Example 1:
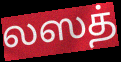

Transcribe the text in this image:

லஸத்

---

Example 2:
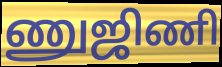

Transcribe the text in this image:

ணுஜிணி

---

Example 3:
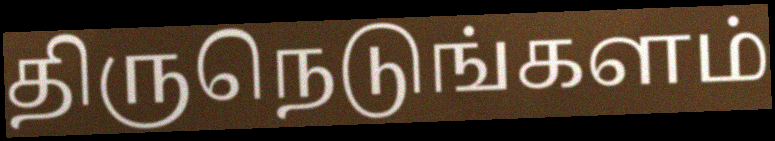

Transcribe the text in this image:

திருநெடுங்களம்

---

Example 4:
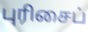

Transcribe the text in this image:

புரிசைப்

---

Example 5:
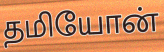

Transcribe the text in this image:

தமியோன்